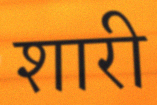
शारी